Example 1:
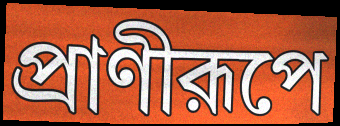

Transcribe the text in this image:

প্রাণীরূপে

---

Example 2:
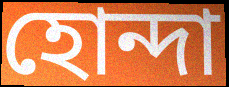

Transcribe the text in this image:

হোন্দা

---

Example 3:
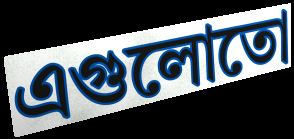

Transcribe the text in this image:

এগুলোতো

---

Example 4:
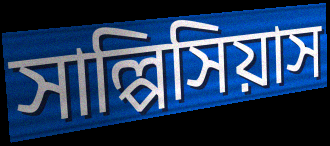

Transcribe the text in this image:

সাল্পিসিয়াস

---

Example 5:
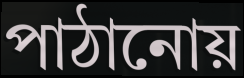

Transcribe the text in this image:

পাঠানোয়